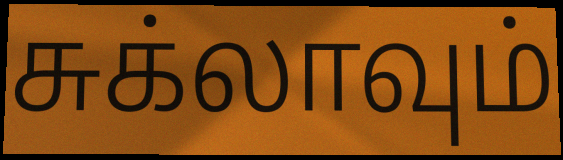
சுக்லாவும்